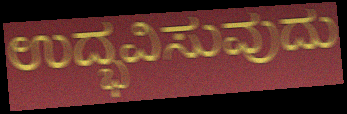
ಉದ್ಭವಿಸುವುದು